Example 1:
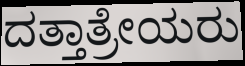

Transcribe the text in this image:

ದತ್ತಾತ್ರೇಯರು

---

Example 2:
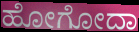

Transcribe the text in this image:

ಹೋಗೋದಾ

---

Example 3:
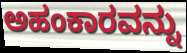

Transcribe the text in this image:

ಅಹಂಕಾರವನ್ನು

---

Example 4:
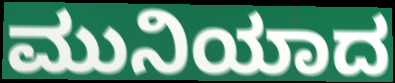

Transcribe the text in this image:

ಮುನಿಯಾದ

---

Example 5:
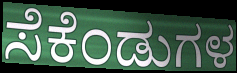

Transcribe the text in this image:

ಸೆಕೆಂಡುಗಳ